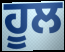
ਹੂਲ